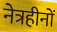
नेत्रहीनों